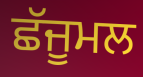
ਛੱਜੂਮਲ